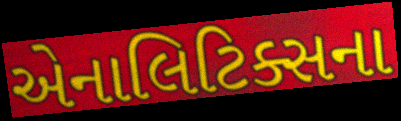
એનાલિટિક્સના